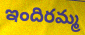
ఇందిరమ్మ